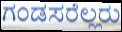
ಗಂಡಸರೆಲ್ಲರು